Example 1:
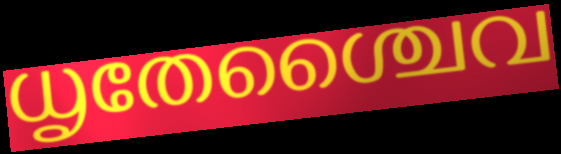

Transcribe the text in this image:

ധൃതേശ്ചൈവ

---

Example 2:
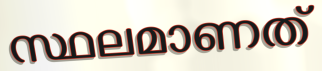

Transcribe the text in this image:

സ്ഥലമാണത്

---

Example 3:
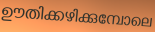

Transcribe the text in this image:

ഊതിക്കഴിക്കുമ്പോലെ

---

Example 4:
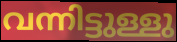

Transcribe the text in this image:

വന്നിട്ടുള്ളു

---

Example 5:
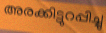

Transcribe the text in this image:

അരക്കിട്ടുറപ്പിച്ചു